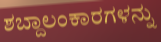
ಶಬ್ದಾಲಂಕಾರಗಳನ್ನು